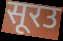
सूरउ